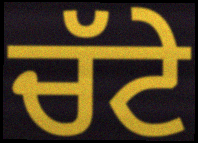
ਚੱਟੇ